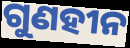
ଗୁଣହୀନ